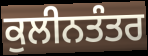
ਕੁਲੀਨਤੰਤਰ